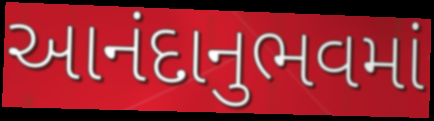
આનંદાનુભવમાં